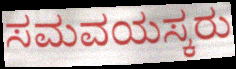
ಸಮವಯಸ್ಕರು